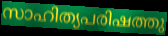
സാഹിത്യപരിഷത്തു